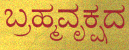
ಬ್ರಹ್ಮವೃಕ್ಷದ